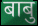
बाबु